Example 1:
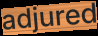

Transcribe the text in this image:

adjured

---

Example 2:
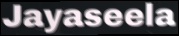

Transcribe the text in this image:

Jayaseela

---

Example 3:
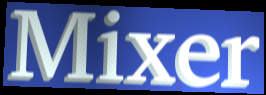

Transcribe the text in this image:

Mixer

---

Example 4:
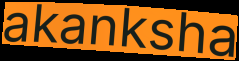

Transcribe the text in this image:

akanksha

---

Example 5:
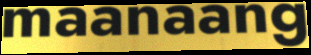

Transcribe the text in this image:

maanaang